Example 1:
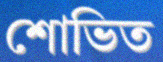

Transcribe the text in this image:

শোভিত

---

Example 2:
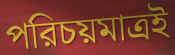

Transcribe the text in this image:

পরিচয়মাত্রই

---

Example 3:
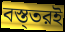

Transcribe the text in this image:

বস্ত্তরই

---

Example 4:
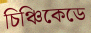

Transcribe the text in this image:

চিঞ্চিকেডে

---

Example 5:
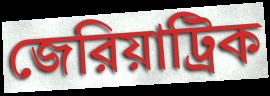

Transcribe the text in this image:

জেরিয়াট্রিক